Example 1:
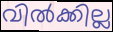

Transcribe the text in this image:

വിൽക്കില്ല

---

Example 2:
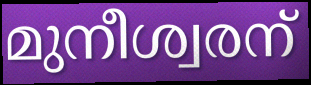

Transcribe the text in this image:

മുനീശ്വരന്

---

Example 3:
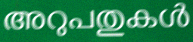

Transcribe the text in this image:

അറുപതുകൾ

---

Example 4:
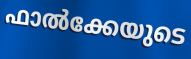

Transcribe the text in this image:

ഫാൽക്കേയുടെ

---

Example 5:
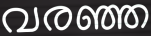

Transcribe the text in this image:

വരഞ്ഞ